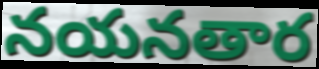
నయనతార